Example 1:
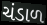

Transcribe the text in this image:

ચંડાળ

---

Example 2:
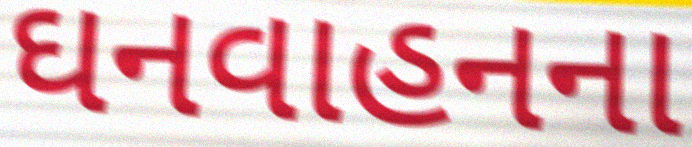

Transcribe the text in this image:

ઘનવાહનના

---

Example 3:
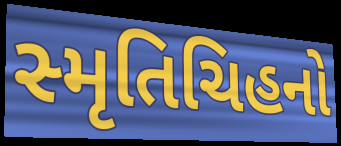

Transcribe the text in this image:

સ્મૃતિચિહનો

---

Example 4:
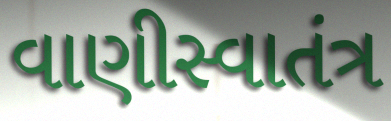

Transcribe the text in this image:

વાણીસ્વાતંત્ર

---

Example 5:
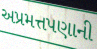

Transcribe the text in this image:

અપ્રમત્તપણાની